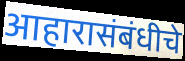
आहारासंबंधीचे